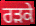
ਰੜਕੇ